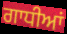
ਗਾਧੀਆਂ